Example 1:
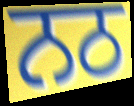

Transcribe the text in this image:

ਨਠ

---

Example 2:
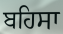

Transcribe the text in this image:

ਬਹਿਸਾ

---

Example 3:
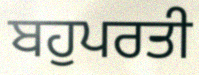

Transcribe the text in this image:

ਬਹੁਪਰਤੀ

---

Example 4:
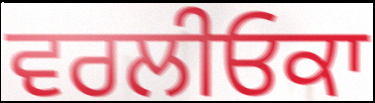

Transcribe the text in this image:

ਵਰਲੀਓਕਾ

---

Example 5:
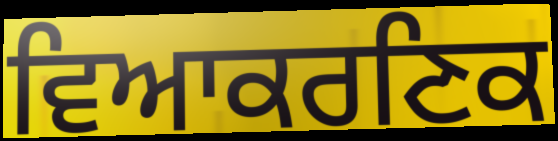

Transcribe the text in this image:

ਵਿਆਕਰਣਿਕ